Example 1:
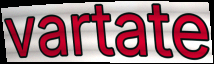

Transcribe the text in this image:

vartate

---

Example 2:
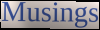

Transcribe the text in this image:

Musings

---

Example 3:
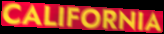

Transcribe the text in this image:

CALIFORNIA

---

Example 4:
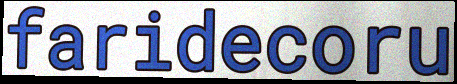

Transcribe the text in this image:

faridecoru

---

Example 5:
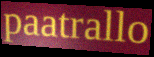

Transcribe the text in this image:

paatrallo